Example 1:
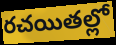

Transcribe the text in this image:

రచయితల్లో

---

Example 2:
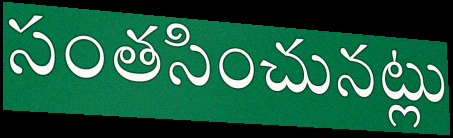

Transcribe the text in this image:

సంతసించునట్లు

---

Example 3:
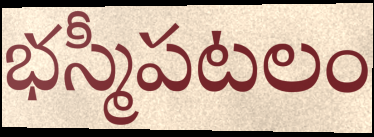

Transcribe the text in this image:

భస్మీపటలం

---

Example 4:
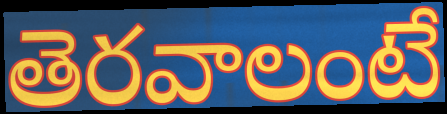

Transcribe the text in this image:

తెరవాలంటే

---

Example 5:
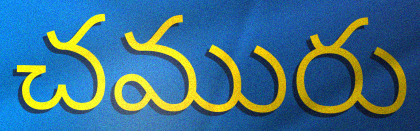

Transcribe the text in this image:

చమురు